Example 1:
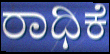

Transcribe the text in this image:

ರಾಧಿಕೆ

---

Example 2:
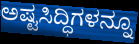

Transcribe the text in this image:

ಅಷ್ಟಸಿದ್ಧಿಗಳನ್ನೂ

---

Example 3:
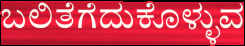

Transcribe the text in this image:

ಬಲಿತೆಗೆದುಕೊಳ್ಳುವ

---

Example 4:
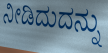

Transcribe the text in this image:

ನೀಡಿದುದನ್ನು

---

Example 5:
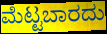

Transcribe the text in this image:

ಮೆಟ್ಟಬಾರದು